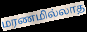
மரணமில்லாத